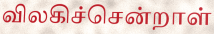
விலகிச்சென்றாள்